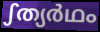
ഽത്യർഥം